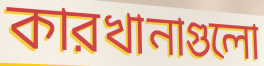
কারখানাগুলো